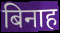
बिनाह